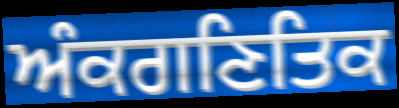
ਅੰਕਗਣਿਤਿਕ